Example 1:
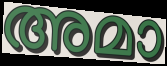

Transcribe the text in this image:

അമാ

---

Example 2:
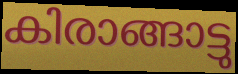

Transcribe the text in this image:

കിരാങ്ങാട്ടു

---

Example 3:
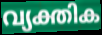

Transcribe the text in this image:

വ്യക്തിക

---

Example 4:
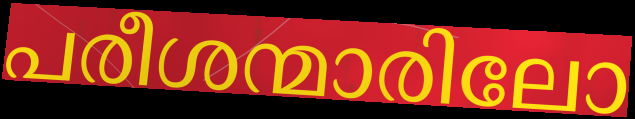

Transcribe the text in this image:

പരീശന്മാരിലോ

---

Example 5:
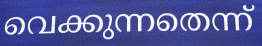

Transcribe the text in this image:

വെക്കുന്നതെന്ന്